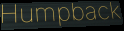
Humpback